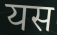
यस